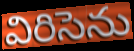
విరిసెను